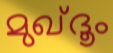
മുഖ്ദൂം